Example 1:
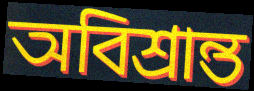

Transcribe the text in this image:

অবিশ্ৰান্ত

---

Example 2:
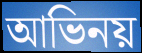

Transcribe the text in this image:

আভিনয়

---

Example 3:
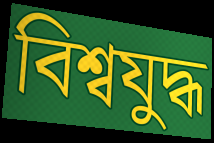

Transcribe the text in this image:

বিশ্বযুদ্ধ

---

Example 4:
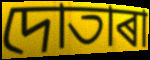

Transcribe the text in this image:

দোতাৰা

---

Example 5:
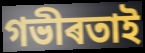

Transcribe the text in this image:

গভীৰতাই